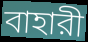
বাহারী